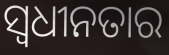
ସ୍ବଧୀନତାର